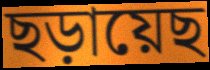
ছড়ায়েছ